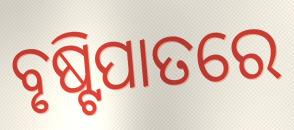
ବୃଷ୍ଟିପାତରେ